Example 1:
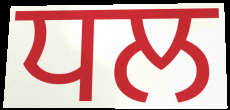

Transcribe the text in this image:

ਧਲ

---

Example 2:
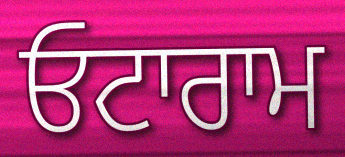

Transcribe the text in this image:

ਓਟਾਰਾਮ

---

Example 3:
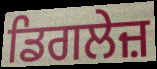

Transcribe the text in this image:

ਡਿਗਲੇਜ਼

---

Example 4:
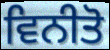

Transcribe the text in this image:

ਵਿਨੀਤੋ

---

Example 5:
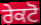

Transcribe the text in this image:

ਰੇਕਟੋ